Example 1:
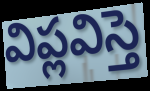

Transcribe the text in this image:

విప్లవిస్తె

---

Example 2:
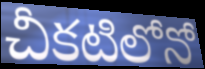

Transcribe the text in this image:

చీకటిలోనో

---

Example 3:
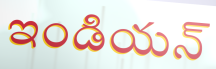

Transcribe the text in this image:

ఇండియన్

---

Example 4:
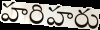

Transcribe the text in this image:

హరిహరు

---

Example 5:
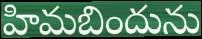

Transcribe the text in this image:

హిమబిందును